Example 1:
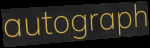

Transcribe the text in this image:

autograph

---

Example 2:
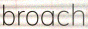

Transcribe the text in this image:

broach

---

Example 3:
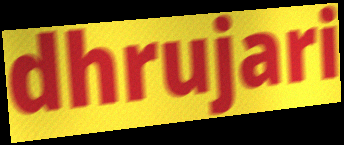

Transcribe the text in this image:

dhrujari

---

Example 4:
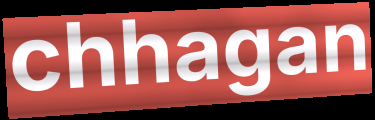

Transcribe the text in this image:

chhagan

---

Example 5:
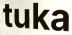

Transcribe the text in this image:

tuka